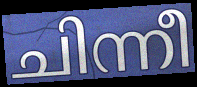
ചിന്നീ